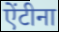
ऐंटीना